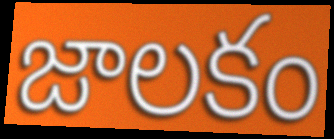
జాలకం